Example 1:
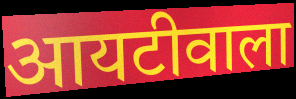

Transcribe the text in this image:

आयटीवाला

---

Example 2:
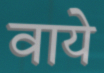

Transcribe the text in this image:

वाये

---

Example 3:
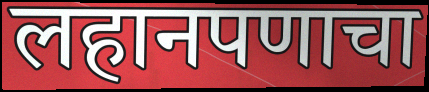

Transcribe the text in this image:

लहानपणाचा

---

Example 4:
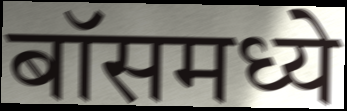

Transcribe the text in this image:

बॉसमध्ये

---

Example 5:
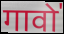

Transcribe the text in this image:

गावो॑